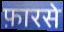
फ़ारसे